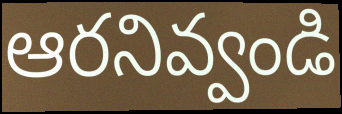
ఆరనివ్వండి